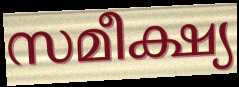
സമീക്ഷ്യ